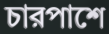
চারপাশে